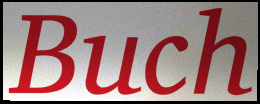
Buch